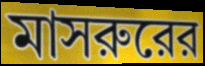
মাসরুরের